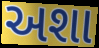
અશા